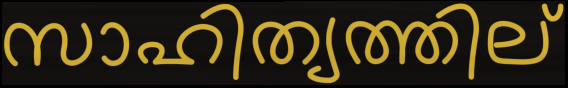
സാഹിത്യത്തില്